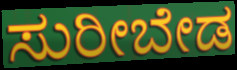
ಸುರೀಬೇಡ